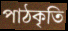
পাঠকৃতি